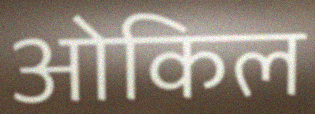
ओकिल